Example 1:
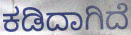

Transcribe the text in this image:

ಕಡಿದಾಗಿದೆ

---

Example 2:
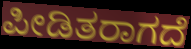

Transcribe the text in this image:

ಪೀಡಿತರಾಗದೆ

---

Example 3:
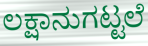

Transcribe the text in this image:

ಲಕ್ಷಾನುಗಟ್ಟಲೆ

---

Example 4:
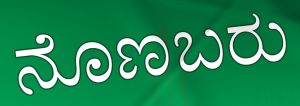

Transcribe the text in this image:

ನೊಣಬರು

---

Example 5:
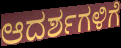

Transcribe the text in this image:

ಆದರ್ಶಗಳಿಗೆ